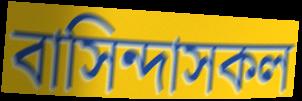
বাসিন্দাসকল